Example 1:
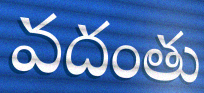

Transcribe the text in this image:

వదంతు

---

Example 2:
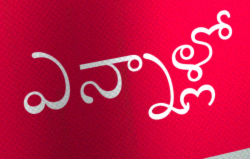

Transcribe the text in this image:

ఎన్నాళ్లో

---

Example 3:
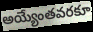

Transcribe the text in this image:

అయ్యేంతవరకూ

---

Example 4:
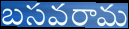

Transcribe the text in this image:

బసవరామ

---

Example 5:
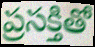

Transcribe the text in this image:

ప్రసక్తితో